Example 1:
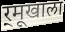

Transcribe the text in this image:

र्मूखाला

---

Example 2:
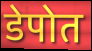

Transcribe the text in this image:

डेपोत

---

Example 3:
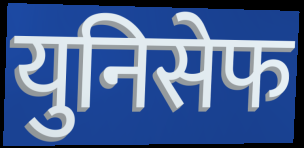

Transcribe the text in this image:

युनिसेफ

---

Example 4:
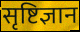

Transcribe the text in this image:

सृष्टिज्ञान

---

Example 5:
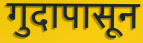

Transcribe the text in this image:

गुदापासून